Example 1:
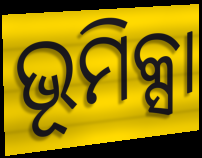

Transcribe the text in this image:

ଭୂମିକ୍ସା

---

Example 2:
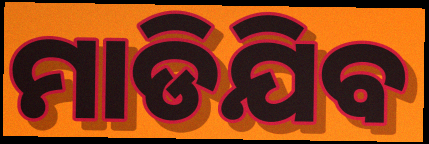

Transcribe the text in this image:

ମାଡିଯିବ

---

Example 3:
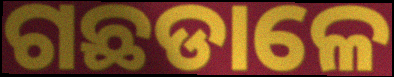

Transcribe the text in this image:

ଗଛଡାଳେ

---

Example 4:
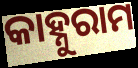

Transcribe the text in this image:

କାହ୍ନୁରାମ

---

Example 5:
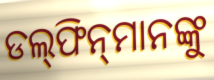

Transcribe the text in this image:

ଡଲ୍‍ଫିନ୍‍ମାନଙ୍କୁ